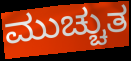
ಮುಚ್ಚುತ